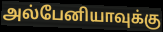
அல்பேனியாவுக்கு